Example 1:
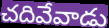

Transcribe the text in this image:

చదివేవాడు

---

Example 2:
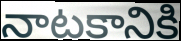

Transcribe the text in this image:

నాటకానికి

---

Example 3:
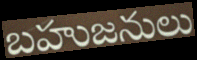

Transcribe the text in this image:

బహుజనులు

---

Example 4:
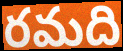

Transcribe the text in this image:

రమది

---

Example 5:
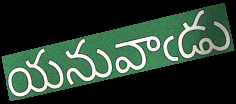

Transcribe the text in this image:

యనువాఁడు